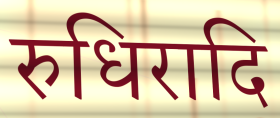
रुधिरादि